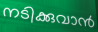
നടിക്കുവാൻ